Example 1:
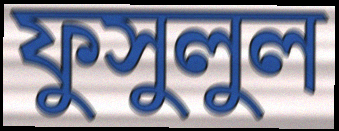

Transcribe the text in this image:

ফুসুলুল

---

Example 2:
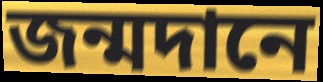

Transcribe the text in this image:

জন্মদানে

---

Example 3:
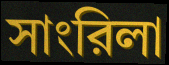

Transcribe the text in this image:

সাংরিলা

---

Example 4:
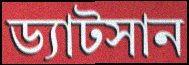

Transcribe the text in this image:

ড্যাটসান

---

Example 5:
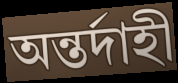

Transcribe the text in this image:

অন্তর্দাহী